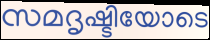
സമദൃഷ്ടിയോടെ